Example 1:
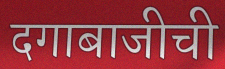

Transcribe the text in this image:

दगाबाजीची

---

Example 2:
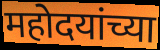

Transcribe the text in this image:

महोदयांच्या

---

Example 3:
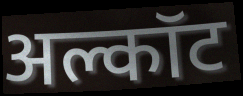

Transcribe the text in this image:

अल्कॉट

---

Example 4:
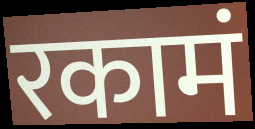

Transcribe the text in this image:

रकामं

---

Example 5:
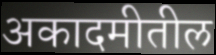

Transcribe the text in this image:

अकादमीतील